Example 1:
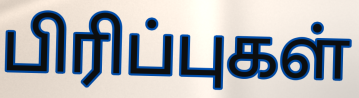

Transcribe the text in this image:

பிரிப்புகள்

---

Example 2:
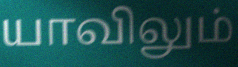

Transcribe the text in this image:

யாவிலும்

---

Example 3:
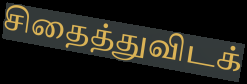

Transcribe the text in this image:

சிதைத்துவிடக்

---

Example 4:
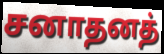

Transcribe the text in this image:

சனாதனத்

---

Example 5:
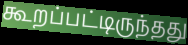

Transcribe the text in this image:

கூறப்பட்டிருந்தது